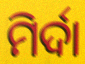
ମିର୍ଦା